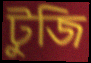
টুজি